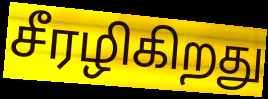
சீரழிகிறது